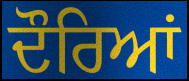
ਦੌਰਿਆਂ